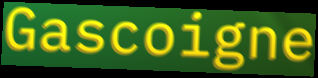
Gascoigne